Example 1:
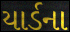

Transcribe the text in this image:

યાર્ડના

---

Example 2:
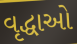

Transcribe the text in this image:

વૃદ્ધાઓ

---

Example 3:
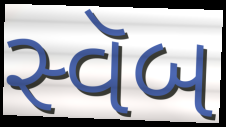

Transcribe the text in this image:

સ્વૅબ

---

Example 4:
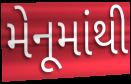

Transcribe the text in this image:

મેનૂમાંથી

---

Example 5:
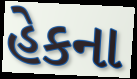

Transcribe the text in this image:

હેકના